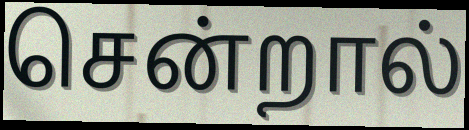
சென்றால்